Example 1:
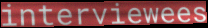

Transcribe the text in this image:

interviewees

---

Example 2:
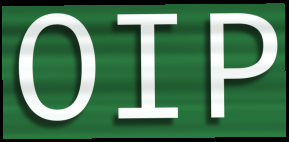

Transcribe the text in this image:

OIP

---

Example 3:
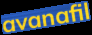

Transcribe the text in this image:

avanafil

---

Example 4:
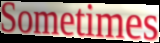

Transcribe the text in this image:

Sometimes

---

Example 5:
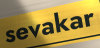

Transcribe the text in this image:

sevakar